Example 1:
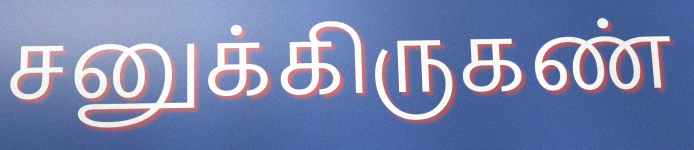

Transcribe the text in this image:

சனுக்கிருகண்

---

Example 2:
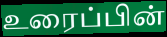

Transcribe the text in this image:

உரைப்பின்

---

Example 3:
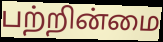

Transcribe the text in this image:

பற்றின்மை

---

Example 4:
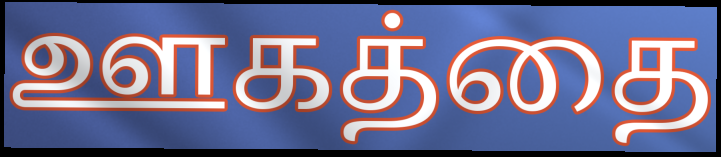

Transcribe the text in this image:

ஊகத்தை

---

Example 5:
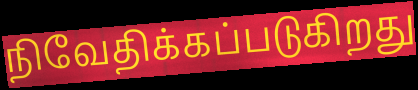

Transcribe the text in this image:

நிவேதிக்கப்படுகிறது